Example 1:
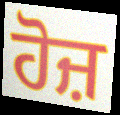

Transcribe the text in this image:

ਹੋਜ਼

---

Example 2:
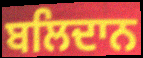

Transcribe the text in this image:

ਬਲਿਦਾਨ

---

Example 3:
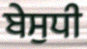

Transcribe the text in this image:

ਬੇਸੁਧੀ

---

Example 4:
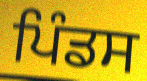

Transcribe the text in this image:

ਪਿੰਡਸ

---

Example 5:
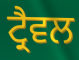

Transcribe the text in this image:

ਟ੍ਰੈਵਲ